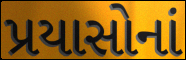
પ્રયાસોનાં